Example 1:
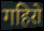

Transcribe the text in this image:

गहिरो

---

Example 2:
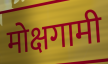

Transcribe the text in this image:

मोक्षगामी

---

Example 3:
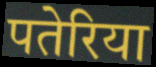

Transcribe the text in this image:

पतेरिया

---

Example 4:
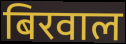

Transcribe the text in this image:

बिरवाल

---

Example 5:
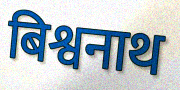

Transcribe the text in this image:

बिश्वनाथ